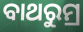
ବାଥରୁମ୍ର